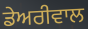
ਡੇਅਰੀਵਾਲ